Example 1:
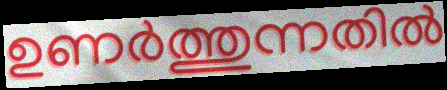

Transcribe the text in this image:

ഉണർത്തുന്നതിൽ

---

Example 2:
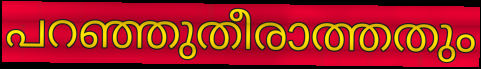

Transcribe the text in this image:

പറഞ്ഞുതീരാത്തതും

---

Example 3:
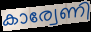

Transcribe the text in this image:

കാര്വേണി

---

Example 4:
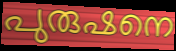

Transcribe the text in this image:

പുരുഷനെ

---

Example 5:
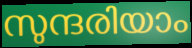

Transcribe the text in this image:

സുന്ദരിയാം